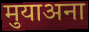
मुयाअना